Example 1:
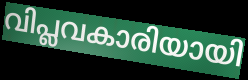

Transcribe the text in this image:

വിപ്ലവകാരിയായി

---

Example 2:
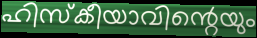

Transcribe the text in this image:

ഹിസ്കീയാവിന്റെയും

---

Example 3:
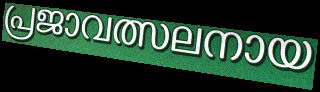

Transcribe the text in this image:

പ്രജാവത്സലനായ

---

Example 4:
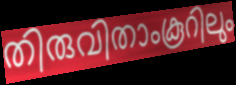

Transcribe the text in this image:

തിരുവിതാംകൂറിലും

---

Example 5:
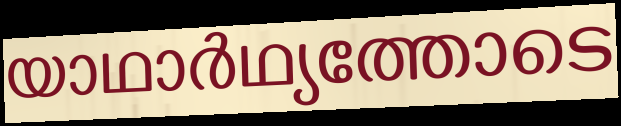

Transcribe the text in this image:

യാഥാർഥ്യത്തോടെ